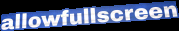
allowfullscreen